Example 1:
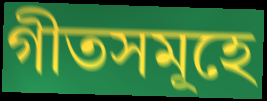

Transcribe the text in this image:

গীতসমূহে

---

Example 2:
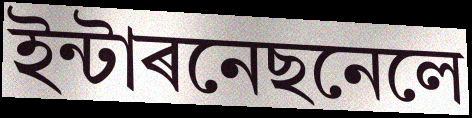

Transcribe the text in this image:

ইন্টাৰনেছনেলে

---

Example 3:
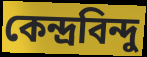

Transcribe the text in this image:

কেন্দ্ৰবিন্দু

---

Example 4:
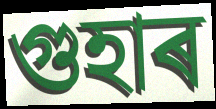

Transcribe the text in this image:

গুহাৰ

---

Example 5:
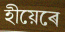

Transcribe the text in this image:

হীয়েৰে